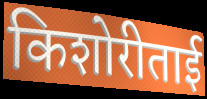
किशोरीताई